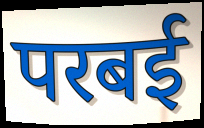
परबई